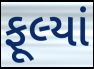
ફૂલ્યાં